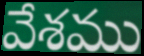
వేశము